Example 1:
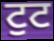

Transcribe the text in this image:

ਟੁਟ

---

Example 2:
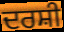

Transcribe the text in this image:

ਦਰਸ਼ੀ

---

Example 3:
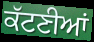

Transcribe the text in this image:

ਕੱਟਣੀਆਂ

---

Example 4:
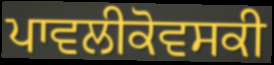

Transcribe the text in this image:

ਪਾਵਲੀਕੋਵਸਕੀ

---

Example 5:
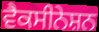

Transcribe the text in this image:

ਵੈਕਸੀਨੇਸ਼ਨ